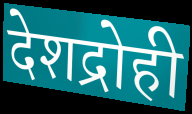
देशद्रोही